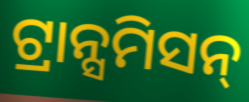
ଟ୍ରାନ୍ସମିସନ୍